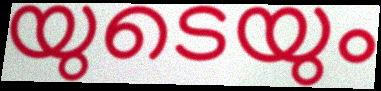
യുടെയും